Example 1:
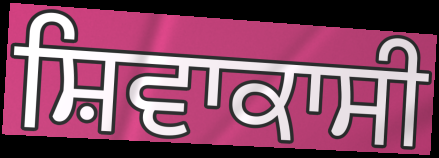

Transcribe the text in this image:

ਸ਼ਿਵਾਕਾਸੀ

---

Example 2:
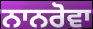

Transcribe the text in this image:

ਨਾਨਰੋਵਾ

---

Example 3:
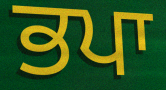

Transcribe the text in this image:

ਭਪਾ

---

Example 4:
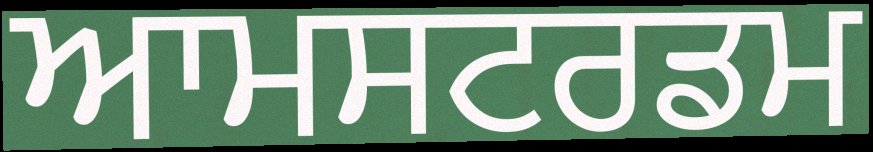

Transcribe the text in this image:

ਆਮਸਟਰਡਮ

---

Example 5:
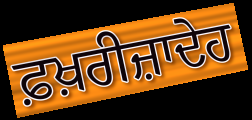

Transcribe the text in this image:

ਫ਼ਖ਼ਰੀਜ਼ਾਦੇਹ